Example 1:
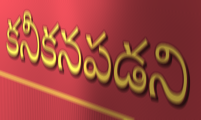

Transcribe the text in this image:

కనీకనపడని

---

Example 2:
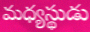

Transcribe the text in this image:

మధ్యస్థుడు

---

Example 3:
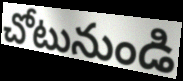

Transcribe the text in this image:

చోటునుండి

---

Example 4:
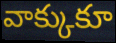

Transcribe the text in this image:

వాక్కుకూ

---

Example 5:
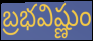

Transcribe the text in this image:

బ్రభవిష్ణుం